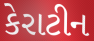
કેરાટીન